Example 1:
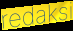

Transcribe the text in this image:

redaksi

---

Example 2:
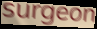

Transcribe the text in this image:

surgeon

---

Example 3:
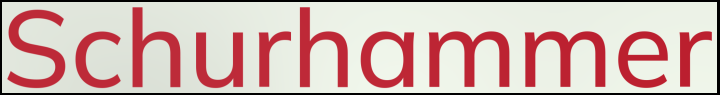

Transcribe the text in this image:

Schurhammer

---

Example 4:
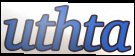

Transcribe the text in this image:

uthta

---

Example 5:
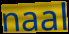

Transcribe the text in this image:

naal